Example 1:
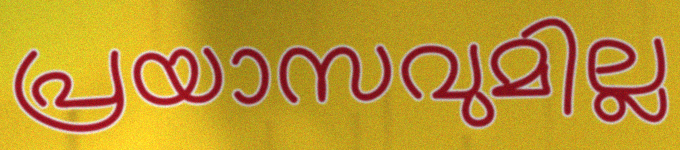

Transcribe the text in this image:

പ്രയാസവുമില്ല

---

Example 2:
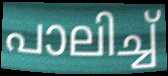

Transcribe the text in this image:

പാലിച്ച്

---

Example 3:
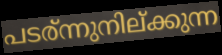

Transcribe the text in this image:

പടര്ന്നുനില്ക്കുന്ന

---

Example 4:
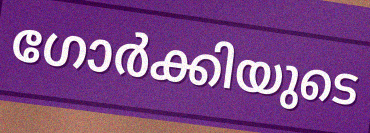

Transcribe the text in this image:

ഗോർക്കിയുടെ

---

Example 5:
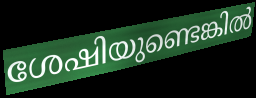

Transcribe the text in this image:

ശേഷിയുണ്ടെങ്കിൽ